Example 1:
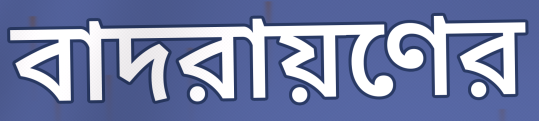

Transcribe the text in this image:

বাদরায়ণের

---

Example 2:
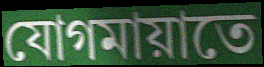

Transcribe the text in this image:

যোগমায়াতে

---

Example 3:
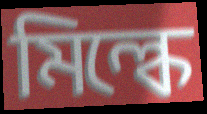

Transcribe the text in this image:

মিল্কে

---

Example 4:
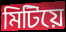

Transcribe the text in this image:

মিটিয়ে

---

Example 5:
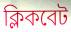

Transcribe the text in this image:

ক্লিকবেট